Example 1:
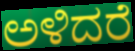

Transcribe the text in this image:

ಅಳಿದರೆ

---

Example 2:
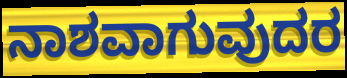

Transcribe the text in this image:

ನಾಶವಾಗುವುದರ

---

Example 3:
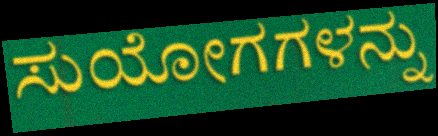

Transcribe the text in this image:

ಸುಯೋಗಗಳನ್ನು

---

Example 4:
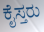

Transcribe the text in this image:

ಕೈಸ್ತರು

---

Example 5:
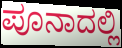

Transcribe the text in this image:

ಪೂನಾದಲ್ಲಿ